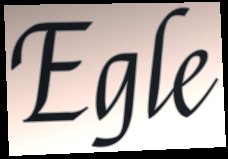
Egle